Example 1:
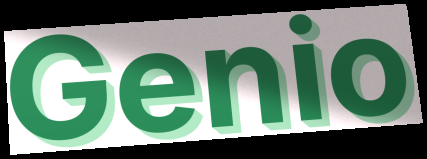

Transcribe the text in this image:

Genio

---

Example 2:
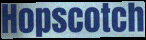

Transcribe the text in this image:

Hopscotch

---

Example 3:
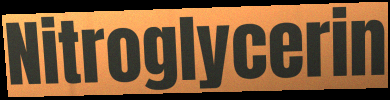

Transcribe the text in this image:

Nitroglycerin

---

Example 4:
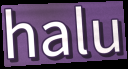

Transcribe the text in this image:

halu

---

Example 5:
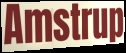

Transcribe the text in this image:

Amstrup